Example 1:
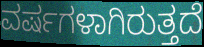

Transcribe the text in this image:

ವರ್ಷಗಳಾಗಿರುತ್ತದೆ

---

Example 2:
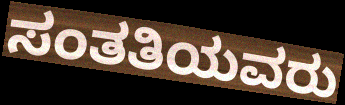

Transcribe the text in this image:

ಸಂತತಿಯವರು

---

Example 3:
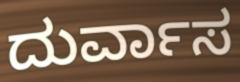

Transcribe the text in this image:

ದುರ್ವಾಸ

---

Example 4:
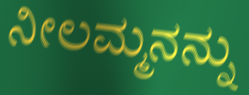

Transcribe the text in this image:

ನೀಲಮ್ಮನನ್ನು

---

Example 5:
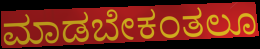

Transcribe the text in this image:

ಮಾಡಬೇಕಂತಲೂ